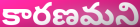
కారణమని